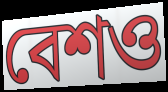
বেশও